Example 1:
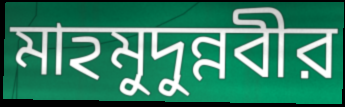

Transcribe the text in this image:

মাহমুদুন্নবীর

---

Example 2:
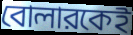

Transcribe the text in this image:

বোলারকেই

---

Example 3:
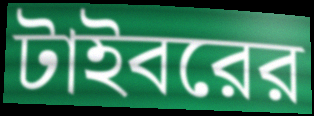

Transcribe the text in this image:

টাইবরের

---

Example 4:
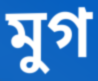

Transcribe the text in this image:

মুগ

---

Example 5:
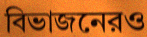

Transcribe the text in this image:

বিভাজনেরও